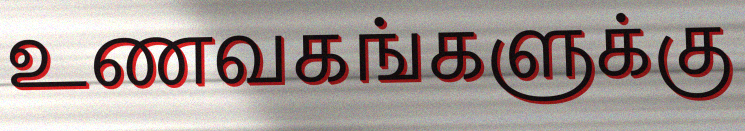
உணவகங்களுக்கு